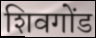
शिवगोंड